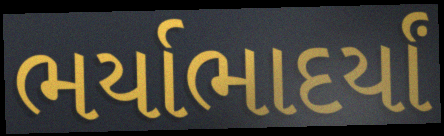
ભર્યાભાદર્યાં